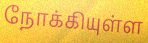
நோக்கியுள்ள